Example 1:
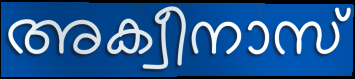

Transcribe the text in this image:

അക്വീനാസ്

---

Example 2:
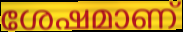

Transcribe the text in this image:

ശേഷമാണ്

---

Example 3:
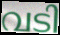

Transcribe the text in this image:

വടി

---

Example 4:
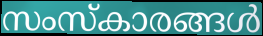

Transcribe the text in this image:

സംസ്കാരങ്ങൾ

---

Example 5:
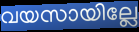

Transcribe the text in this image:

വയസായില്ലേ